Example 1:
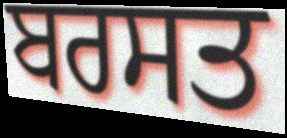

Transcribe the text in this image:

ਬਰਸਤ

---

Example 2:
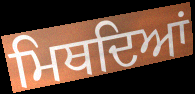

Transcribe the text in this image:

ਮਿਥਦਿਆਂ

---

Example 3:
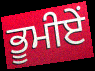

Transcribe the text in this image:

ਭੂਮੀਏਂ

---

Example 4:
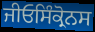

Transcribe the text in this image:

ਜੀਓਸਿੰਕ੍ਰੋਨਸ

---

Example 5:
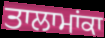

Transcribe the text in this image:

ਤਾਲਾਮਾਂਕਾ